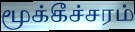
மூக்கீச்சரம்